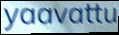
yaavattu